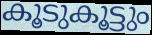
കൂടുകൂട്ടും